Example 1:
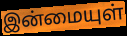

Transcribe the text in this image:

இன்மையுள்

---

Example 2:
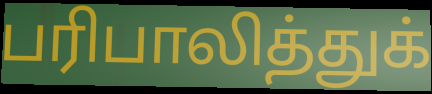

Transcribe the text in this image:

பரிபாலித்துக்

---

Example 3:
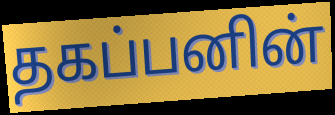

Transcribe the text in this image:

தகப்பனின்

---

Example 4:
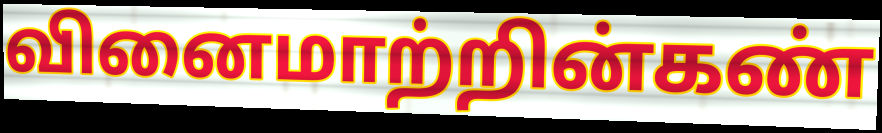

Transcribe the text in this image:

வினைமாற்றின்கண்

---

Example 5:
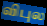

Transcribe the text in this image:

விபுல